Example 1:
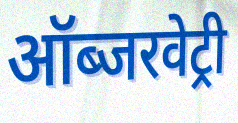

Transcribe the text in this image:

ऑब्जरवेट्री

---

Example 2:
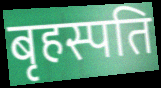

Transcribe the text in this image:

बृहस्‍पति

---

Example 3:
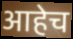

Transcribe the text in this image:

आहेच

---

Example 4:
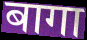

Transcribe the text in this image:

बागा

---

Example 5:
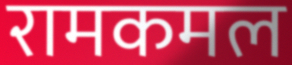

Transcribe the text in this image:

रामकमल